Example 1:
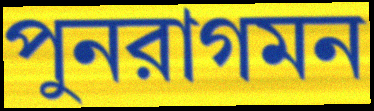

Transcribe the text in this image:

পুনরাগমন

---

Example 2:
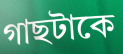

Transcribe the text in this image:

গাছটাকে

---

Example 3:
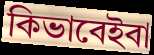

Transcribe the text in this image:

কিভাবেইবা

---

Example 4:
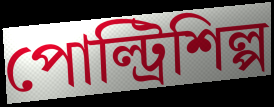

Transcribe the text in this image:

পোল্ট্রিশিল্প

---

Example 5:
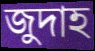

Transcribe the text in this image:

জুদাহ